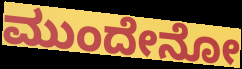
ಮುಂದೇನೋ